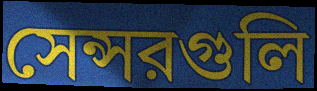
সেন্সরগুলি